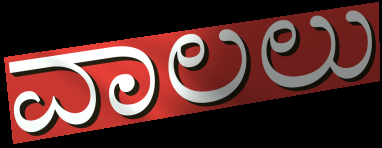
ವಾಲಲು